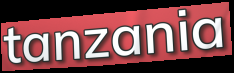
tanzania